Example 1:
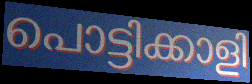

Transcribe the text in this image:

പൊട്ടിക്കാളി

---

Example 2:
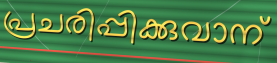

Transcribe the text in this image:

പ്രചരിപ്പിക്കുവാന്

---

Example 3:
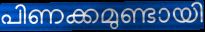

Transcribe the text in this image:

പിണക്കമുണ്ടായി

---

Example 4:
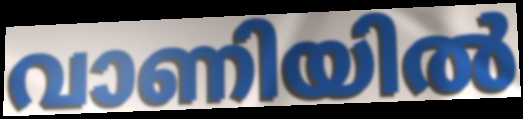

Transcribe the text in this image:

വാണിയിൽ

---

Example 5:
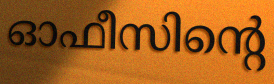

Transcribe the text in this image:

ഓഫീസിന്റെ